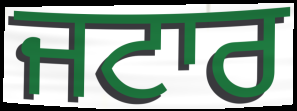
ਜਟਾਰ